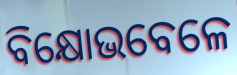
ବିକ୍ଷୋଭବେଳେ